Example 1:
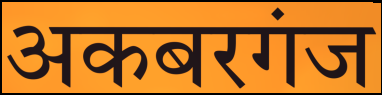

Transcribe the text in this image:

अकबरगंज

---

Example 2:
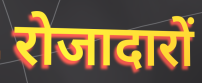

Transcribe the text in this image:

रोजादारों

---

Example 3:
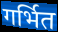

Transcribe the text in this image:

गर्भित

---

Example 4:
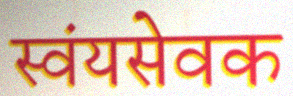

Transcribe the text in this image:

स्वंयसेवक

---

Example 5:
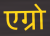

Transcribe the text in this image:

एग्रो